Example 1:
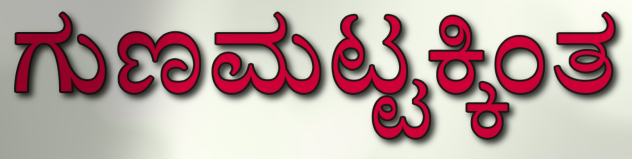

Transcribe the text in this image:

ಗುಣಮಟ್ಟಕ್ಕಿಂತ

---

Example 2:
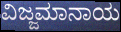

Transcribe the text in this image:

ವಿಜ್ಜಮಾನಾಯ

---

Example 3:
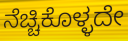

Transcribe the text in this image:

ನೆಚ್ಚಿಕೊಳ್ಳದೇ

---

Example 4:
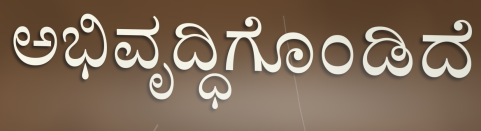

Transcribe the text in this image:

ಅಭಿವೃದ್ಧಿಗೊಂಡಿದೆ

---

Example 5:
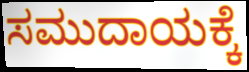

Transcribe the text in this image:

ಸಮುದಾಯಕ್ಕೆ